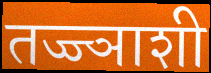
तज्ज्ञाशी